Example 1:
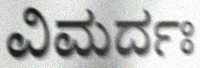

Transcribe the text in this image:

ವಿಮರ್ದಃ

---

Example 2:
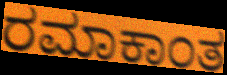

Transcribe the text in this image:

ರಮಾಕಾಂತ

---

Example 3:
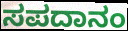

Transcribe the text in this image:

ಸಪದಾನಂ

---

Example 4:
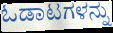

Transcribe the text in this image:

ಓಡಾಟಗಳನ್ನು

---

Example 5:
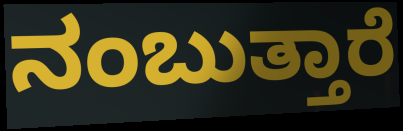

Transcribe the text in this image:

ನಂಬುತ್ತಾರೆ